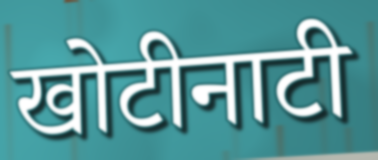
खोटीनाटी